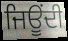
ਜਿਊਂਦੀ